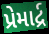
પ્રેમાર્દ્ર